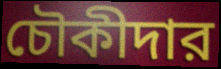
চৌকীদার